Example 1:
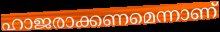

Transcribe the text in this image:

ഹാജരാക്കണമെന്നാണ്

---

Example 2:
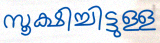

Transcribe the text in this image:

സൂക്ഷിച്ചിട്ടുള്ള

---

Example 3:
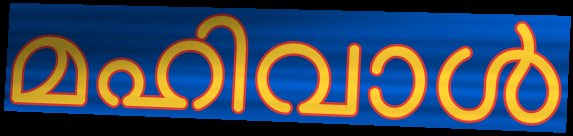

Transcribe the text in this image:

മഹിവാൾ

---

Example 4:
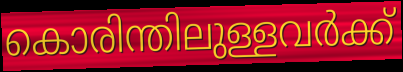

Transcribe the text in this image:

കൊരിന്തിലുള്ളവർക്ക്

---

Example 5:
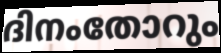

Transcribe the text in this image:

ദിനംതോറും